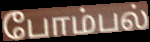
போம்பல்